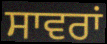
ਸਾਵਰਾਂ